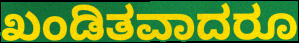
ಖಂಡಿತವಾದರೂ